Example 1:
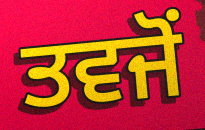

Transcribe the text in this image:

ਤਵਜੋਂ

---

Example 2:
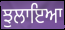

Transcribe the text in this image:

ਝੁਲਾਇਆ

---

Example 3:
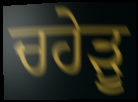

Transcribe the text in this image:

ਚਹੇੜੂ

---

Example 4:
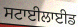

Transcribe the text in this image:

ਸਟਾਈਲਾਈਡ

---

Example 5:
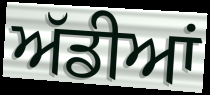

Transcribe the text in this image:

ਅੱਡੀਆਂ